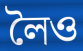
লৈও